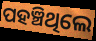
ପହଞ୍ଚିଥିଲେ